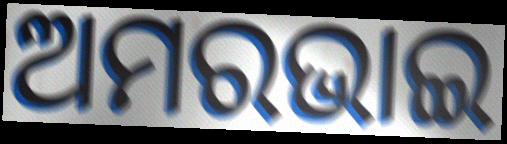
ଅମରଭାଇ